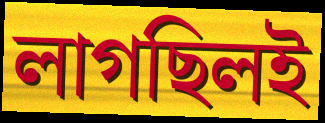
লাগছিলই